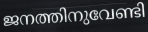
ജനത്തിനുവേണ്ടി